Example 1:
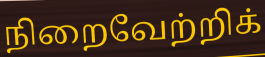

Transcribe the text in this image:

நிறைவேற்றிக்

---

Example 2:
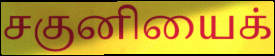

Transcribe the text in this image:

சகுனியைக்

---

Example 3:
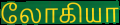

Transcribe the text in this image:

லோகியா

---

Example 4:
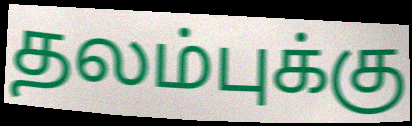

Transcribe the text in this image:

தலம்புக்கு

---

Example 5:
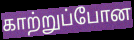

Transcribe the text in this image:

காற்றுப்போன